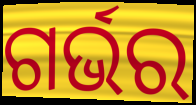
ଗର୍ଭର